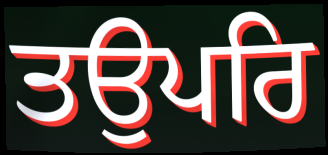
ਤਉਪਰਿ